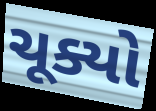
ચૂક્યો